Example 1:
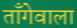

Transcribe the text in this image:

ताँगेवाला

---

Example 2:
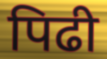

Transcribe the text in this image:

पिढी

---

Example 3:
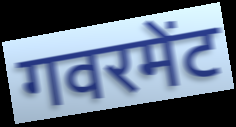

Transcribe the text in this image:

गवरमेंट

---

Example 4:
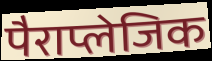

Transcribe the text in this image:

पैराप्लेजिक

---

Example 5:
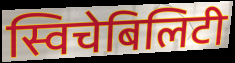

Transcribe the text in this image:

स्विचेबिलिटी